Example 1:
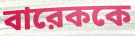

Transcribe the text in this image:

বারেককে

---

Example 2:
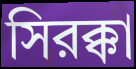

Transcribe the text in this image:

সিরক্কা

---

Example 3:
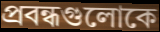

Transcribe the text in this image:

প্রবন্ধগুলোকে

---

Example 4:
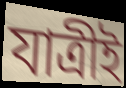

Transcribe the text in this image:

যাত্রীই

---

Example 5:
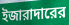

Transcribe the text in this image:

ইজারাদারের